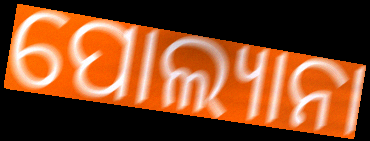
ପୋଲ୍ୟାନା